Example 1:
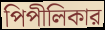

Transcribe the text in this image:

পিপীলিকার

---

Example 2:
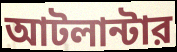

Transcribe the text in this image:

আটলান্টার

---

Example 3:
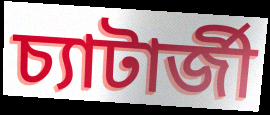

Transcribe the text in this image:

চ্যাটার্জী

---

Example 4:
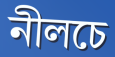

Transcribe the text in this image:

নীলচে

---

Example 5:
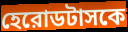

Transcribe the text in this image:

হেরোডটাসকে